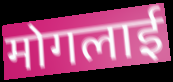
मोगलाई